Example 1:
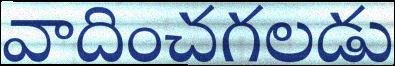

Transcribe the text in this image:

వాదించగలడు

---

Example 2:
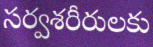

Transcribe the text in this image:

సర్వశరీరులకు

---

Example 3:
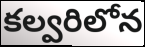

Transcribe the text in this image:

కల్వరిలోన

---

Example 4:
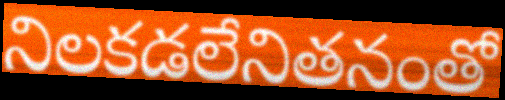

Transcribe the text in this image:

నిలకడలేనితనంతో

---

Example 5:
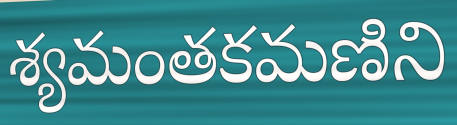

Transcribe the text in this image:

శ్యమంతకమణిని